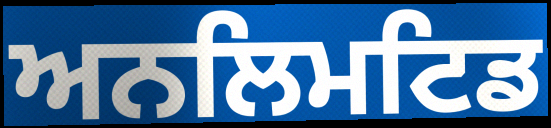
ਅਨਲਿਮਟਿਡ